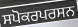
ਸਪੋਕਰਪਰਸਨ